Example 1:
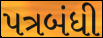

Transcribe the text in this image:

પત્રબંધી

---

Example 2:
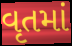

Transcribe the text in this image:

વૃતમાં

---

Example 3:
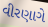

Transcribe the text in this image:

વીરણાગે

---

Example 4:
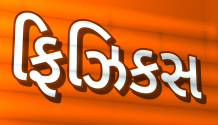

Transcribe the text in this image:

ફિઝિકસ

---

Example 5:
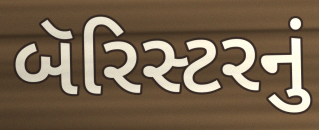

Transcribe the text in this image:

બૅરિસ્ટરનું